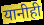
यानीही